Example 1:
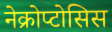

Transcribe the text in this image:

नेक्रोप्टोसिस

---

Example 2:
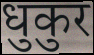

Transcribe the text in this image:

धुकुर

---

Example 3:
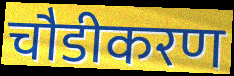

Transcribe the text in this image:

चौडीकरण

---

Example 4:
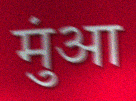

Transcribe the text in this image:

मुंआ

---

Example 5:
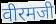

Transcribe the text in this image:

वीरमजी